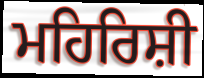
ਮਹਿਰਿਸ਼ੀ